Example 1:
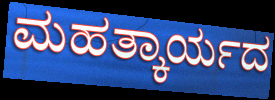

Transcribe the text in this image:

ಮಹತ್ಕಾರ್ಯದ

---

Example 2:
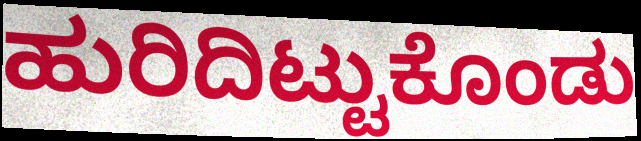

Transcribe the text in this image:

ಹುರಿದಿಟ್ಟುಕೊಂಡು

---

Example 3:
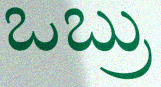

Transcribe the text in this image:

ಒಬ್ರು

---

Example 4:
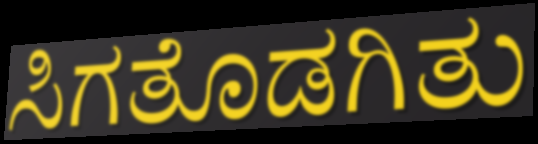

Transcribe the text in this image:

ಸಿಗತೊಡಗಿತು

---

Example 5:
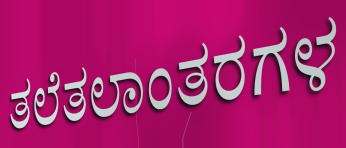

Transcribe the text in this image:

ತಲೆತಲಾಂತರಗಳ